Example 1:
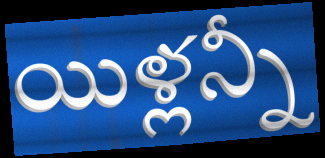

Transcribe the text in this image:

యిళ్లన్నీ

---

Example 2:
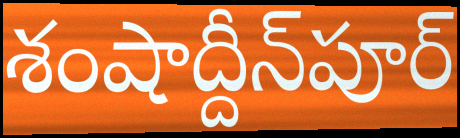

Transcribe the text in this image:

శంషాద్దీన్‌పూర్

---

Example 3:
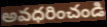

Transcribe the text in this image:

అవధరించండి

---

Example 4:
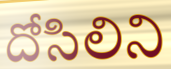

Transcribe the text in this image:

దోసిలిని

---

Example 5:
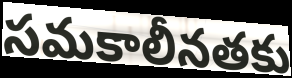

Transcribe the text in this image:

సమకాలీనతకు